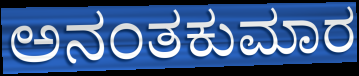
ಅನಂತಕುಮಾರ